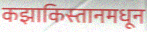
कझाकिस्तानमधून